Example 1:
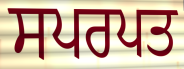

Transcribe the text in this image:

ਸਪਰਪਤ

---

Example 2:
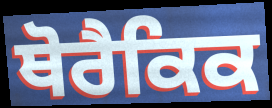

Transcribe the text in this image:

ਥੋਰੈਕਿਕ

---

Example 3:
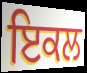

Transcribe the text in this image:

ਇਕਲ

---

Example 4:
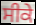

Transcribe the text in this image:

ਸੀਕੇ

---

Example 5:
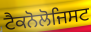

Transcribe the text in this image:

ਟੈਕਨੋਲੋਜਿਸਟ